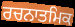
ਰਚਨਾਤਮਿਕ